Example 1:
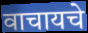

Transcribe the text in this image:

वाचायचे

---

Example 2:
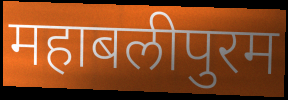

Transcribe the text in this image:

महाबलीपुरम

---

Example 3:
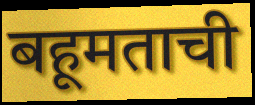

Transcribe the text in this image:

बहूमताची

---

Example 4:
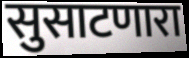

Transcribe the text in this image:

सुसाटणारा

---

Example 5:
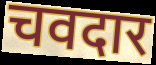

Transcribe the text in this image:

चवदार